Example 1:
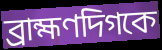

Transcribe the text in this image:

ব্রাহ্মণদিগকে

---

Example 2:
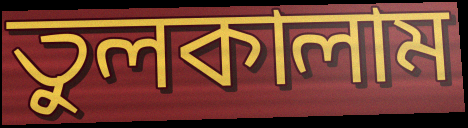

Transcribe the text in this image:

তুলকালাম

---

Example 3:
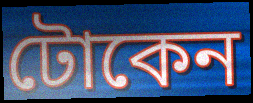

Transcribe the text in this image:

টোকেন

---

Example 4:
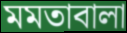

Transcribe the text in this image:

মমতাবালা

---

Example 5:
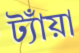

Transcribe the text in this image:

ট্যাঁয়া